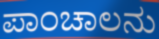
ಪಾಂಚಾಲನು